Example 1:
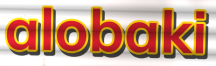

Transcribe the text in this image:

alobaki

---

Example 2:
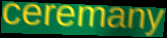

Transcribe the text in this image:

ceremany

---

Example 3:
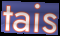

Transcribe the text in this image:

tais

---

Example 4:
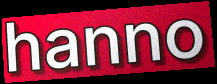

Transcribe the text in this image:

hanno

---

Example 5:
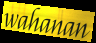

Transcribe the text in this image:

wahanan